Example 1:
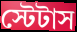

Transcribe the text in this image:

স্টেটাস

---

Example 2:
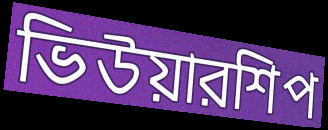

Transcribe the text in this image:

ভিউয়ারশিপ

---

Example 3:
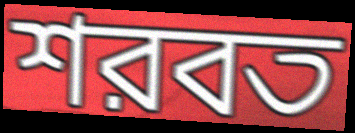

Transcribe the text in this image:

শরবত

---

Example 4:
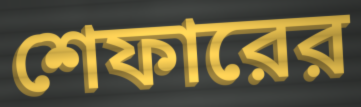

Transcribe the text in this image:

শেফারের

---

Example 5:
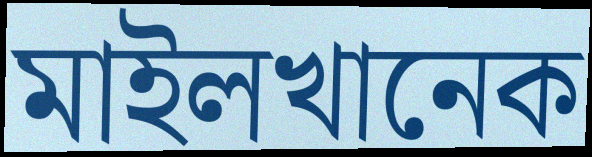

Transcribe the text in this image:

মাইলখানেক